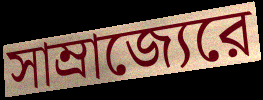
সাম্রাজ্যেরে